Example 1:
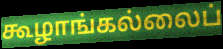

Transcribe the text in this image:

கூழாங்கல்லைப்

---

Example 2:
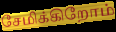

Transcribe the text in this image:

சேமிக்கிறோம்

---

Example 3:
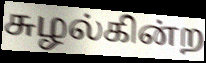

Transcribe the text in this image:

சுழல்கின்ற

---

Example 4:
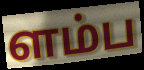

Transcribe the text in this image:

ளம்ப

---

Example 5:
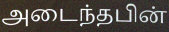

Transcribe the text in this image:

அடைந்தபின்